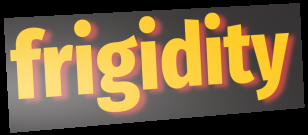
frigidity